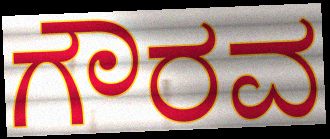
ಗೌರವ